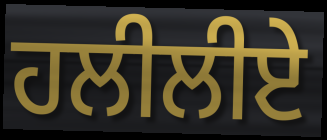
ਹਲੀਲੀਏ